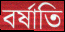
বর্ষাতি